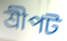
শ্রীপট